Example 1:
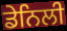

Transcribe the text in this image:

ਡੇਨਿਲੀ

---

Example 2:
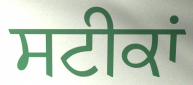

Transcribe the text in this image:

ਸਟੀਕਾਂ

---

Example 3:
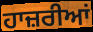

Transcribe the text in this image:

ਹਾਜ਼ਰੀਆਂ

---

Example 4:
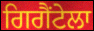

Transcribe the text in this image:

ਗਿਗੈਂਟੇਲਾ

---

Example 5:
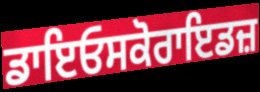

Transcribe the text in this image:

ਡਾਇਓਸਕੋਰਾਇਡਜ਼